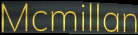
Mcmillan